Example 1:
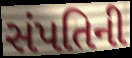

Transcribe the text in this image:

સંપતિની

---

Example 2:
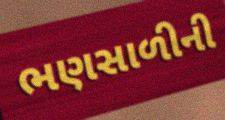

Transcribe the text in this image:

ભણસાળીની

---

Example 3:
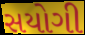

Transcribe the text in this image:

સયોગી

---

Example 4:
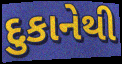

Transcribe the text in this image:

દુકાનેથી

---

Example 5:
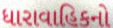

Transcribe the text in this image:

ધારાવાહિકનો